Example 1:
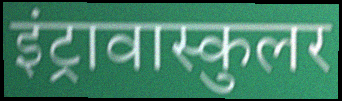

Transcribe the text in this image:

इंट्रावास्कुलर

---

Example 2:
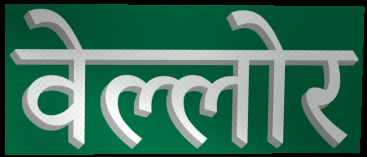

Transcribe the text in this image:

वेल्लोर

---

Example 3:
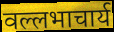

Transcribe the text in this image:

वल्‍लभाचार्य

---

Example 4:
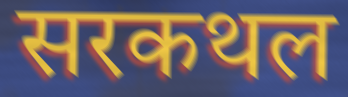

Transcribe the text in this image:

सरकथल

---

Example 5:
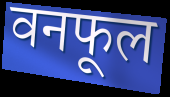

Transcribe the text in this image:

वनफूल